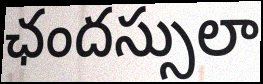
ఛందస్సులా